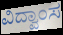
ವಿದ್ವಾಂಸ